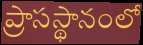
ప్రాసస్థానంలో